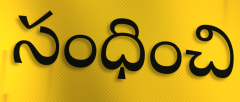
సంధించి